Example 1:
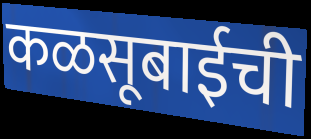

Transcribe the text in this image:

कळसूबाईची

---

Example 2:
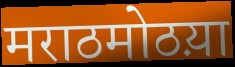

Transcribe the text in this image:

मराठमोठय़ा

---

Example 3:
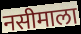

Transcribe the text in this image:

नसीमाला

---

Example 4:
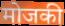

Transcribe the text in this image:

मोजकी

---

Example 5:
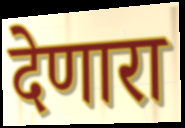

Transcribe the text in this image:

देणारा